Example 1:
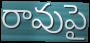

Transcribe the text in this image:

రావుపై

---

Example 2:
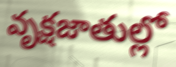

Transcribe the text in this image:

వృక్షజాతుల్లో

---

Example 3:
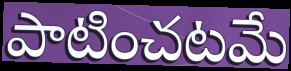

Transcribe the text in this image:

పాటించటమే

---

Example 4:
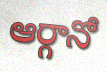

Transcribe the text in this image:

ఆర్గానో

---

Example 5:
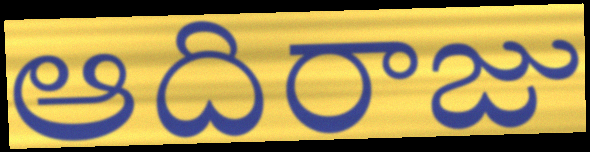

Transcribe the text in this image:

ఆదిరాజు